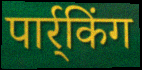
पार्र्किंग